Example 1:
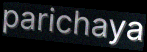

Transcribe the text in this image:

parichaya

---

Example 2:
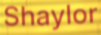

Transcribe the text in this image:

Shaylor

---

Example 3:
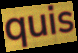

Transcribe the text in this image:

quis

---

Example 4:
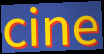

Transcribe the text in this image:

cine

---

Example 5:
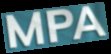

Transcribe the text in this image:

MPA